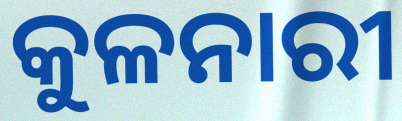
କୁଳନାରୀ